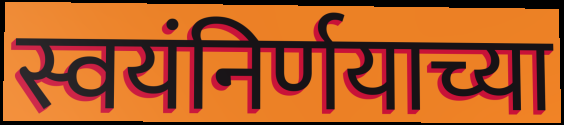
स्वयंनिर्णयाच्या